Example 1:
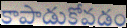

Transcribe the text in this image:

కాపాడుకోవడం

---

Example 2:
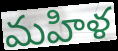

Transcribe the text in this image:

మహిళ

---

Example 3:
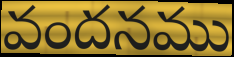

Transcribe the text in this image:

వందనము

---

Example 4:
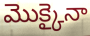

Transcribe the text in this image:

మొక్కైనా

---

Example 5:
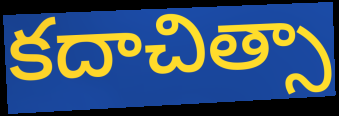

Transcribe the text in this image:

కదాచిత్సా